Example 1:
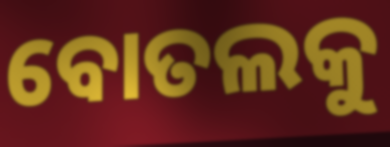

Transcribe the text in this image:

ବୋତଲକୁ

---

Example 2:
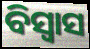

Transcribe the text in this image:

ବିସ୍ବାସ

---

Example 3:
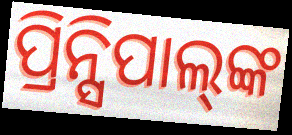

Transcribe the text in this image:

ପ୍ରିନ୍ସିପାଲ୍‍ଙ୍କ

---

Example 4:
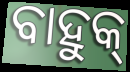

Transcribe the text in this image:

ବାହୁକ୍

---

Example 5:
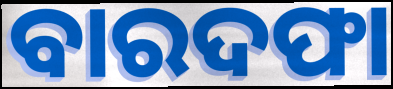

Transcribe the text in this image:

ବାରଦଫା